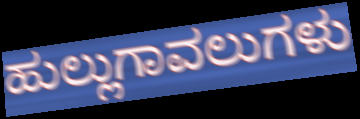
ಹುಲ್ಲುಗಾವಲುಗಳು